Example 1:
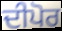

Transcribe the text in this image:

ਦੀਪੋਰ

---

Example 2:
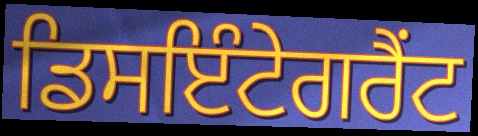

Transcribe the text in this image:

ਡਿਸਇੰਟੇਗਰੈਂਟ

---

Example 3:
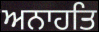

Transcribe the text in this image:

ਅਨਾਹਤਿ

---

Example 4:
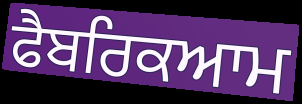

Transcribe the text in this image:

ਫੈਬਰਿਕਆਮ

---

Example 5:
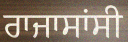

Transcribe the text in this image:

ਰਾਜਾਸਾਂਸੀ